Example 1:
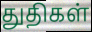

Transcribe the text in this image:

துதிகள்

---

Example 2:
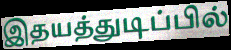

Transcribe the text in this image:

இதயத்துடிப்பில்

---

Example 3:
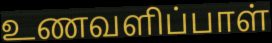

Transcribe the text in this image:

உணவளிப்பாள்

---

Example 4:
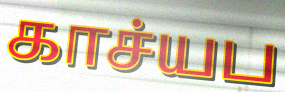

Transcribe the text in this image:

காச்யப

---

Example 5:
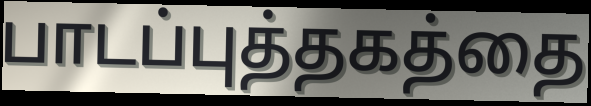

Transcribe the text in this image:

பாடப்புத்தகத்தை